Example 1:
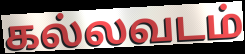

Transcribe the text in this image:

கல்லவடம்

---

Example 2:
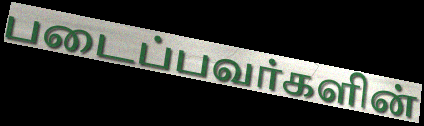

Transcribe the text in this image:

படைப்பவர்களின்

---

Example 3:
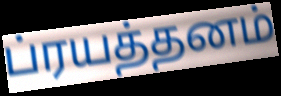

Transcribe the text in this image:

ப்ரயத்தனம்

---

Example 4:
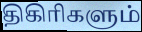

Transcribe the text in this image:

திகிரிகளும்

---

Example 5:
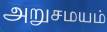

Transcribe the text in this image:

அறுசமயம்